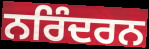
ਨਰਿੰਦਰਨ